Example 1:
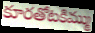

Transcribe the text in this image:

కూరతోటకిమ్ము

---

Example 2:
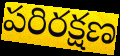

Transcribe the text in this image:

పరిరక్షణ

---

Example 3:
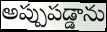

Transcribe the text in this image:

అప్పుపడ్డాను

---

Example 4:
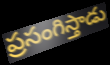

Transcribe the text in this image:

ప్రసంగిస్తాడు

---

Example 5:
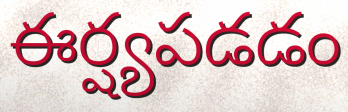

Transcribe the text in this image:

ఈర్ష్యపడడం